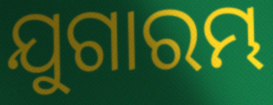
ଯୁଗାରମ୍ଭ